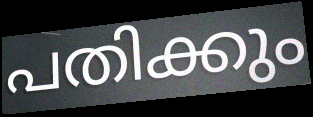
പതിക്കും